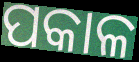
ପକାଳ